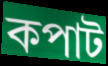
কপাট